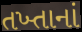
તખ્તાનાં